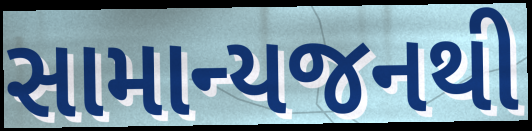
સામાન્યજનથી